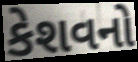
કેશવનો